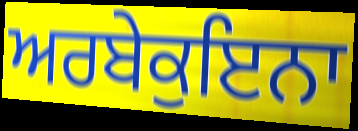
ਅਰਬੇਕੁਇਨਾ